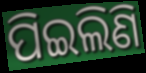
ପିଇଲିଣି